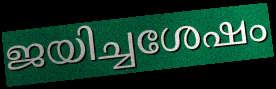
ജയിച്ചശേഷം